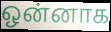
ஒன்னாக